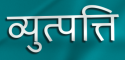
व्युत्पत्ति